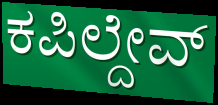
ಕಪಿಲ್ದೇವ್